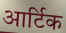
आर्टिक